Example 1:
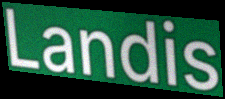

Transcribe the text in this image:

Landis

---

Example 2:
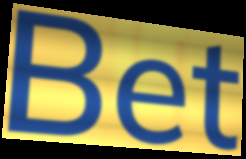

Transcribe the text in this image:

Bet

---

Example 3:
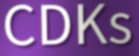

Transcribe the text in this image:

CDKs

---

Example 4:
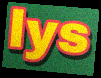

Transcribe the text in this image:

lys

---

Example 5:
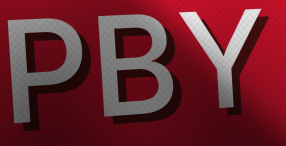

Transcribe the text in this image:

PBY